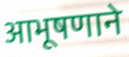
आभूषणाने